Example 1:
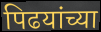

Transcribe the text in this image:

पिढयांच्या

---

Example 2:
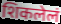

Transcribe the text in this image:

शिकलेलं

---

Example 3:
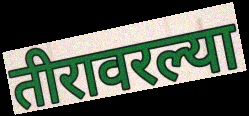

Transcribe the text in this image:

तीरावरल्या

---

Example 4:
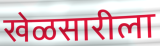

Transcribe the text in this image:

खेळसारीला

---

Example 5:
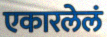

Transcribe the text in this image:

एकारलेलं